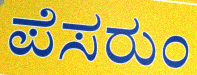
ಪೆಸರುಂ